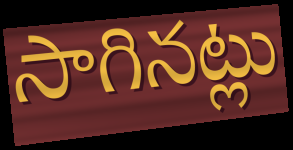
సాగినట్లు